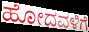
ಹೋದವಳಿಗೆ